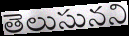
తెలుసునని